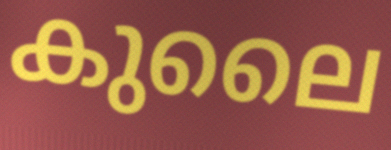
കുലൈ